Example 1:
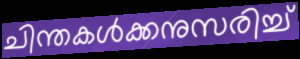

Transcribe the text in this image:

ചിന്തകൾക്കനുസരിച്ച്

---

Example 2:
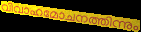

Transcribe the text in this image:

വിവാഹമോചനത്തിന്നും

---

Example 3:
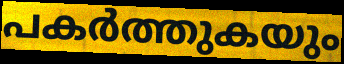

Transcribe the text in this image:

പകർത്തുകയും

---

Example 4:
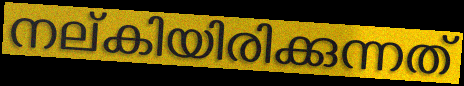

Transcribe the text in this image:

നല്‌കിയിരിക്കുന്നത്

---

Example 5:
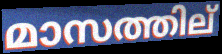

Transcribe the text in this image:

മാസത്തില്